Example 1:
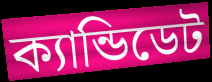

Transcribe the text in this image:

ক্যান্ডিডেট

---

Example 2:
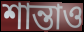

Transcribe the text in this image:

শান্তাও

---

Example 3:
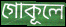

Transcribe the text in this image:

গোকূলে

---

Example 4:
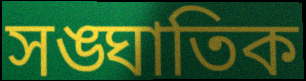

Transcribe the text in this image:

সঙ্ঘাতিক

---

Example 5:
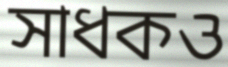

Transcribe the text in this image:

সাধকও